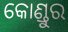
କୋଣ୍ଡୁର